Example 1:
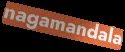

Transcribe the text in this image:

nagamandala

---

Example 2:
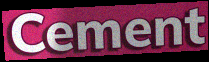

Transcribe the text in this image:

Cement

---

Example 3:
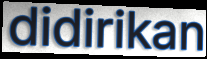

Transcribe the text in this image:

didirikan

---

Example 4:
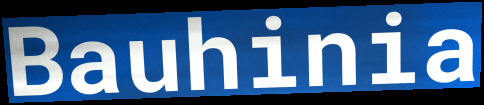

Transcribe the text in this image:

Bauhinia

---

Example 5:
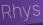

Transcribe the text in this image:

Rhys